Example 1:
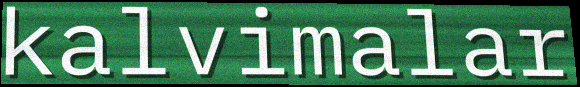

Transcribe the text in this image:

kalvimalar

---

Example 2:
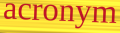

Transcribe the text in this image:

acronym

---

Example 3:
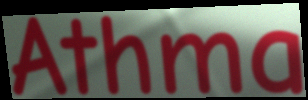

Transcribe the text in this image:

Athma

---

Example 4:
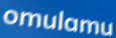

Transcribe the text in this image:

omulamu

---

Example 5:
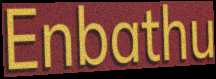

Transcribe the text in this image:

Enbathu